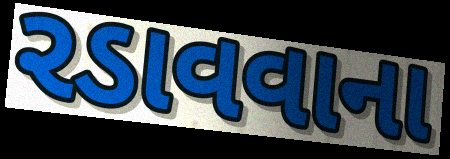
રડાવવાના